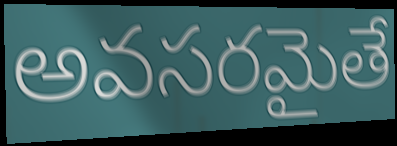
అవసరమైతే